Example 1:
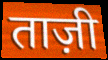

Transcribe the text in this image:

ताज़ी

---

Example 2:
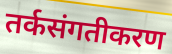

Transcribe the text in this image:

तर्कसंगतीकरण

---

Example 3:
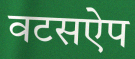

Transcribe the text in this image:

वटसऐप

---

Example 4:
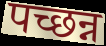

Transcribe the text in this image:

पच्छन्न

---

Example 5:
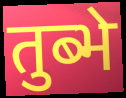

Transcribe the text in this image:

तुब्भे